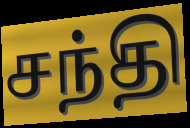
சந்தி